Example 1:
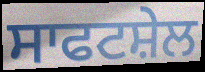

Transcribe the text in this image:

ਸਾਫਟਸ਼ੇਲ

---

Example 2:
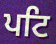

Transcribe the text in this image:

ਪਟਿ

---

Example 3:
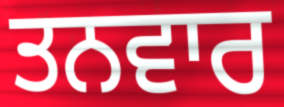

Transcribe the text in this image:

ਤਨਵਾਰ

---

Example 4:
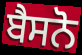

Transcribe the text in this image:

ਬੈਸਨੋ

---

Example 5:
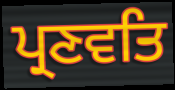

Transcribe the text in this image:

ਪ੍ਰਣਵਤਿ